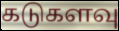
கடுகளவு